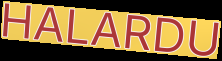
HALARDU